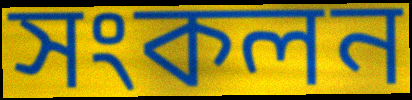
সংকলন